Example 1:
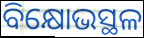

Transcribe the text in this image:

ବିକ୍ଷୋଭସ୍ଥଳ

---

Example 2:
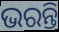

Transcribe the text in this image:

ଭରନ୍ତି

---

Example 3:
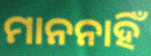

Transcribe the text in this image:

ମାନନାହିଁ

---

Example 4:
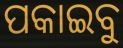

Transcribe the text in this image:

ପକାଇବୁ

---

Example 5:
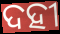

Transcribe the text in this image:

ଦହୀ